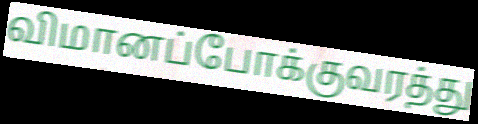
விமானப்போக்குவரத்து